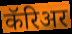
कॅरिअर